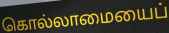
கொல்லாமையைப்